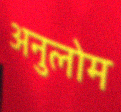
अनुलोम